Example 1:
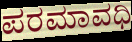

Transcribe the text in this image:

ಪರಮಾವಧಿ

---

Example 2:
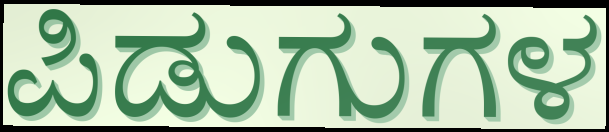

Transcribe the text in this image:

ಪಿಡುಗುಗಳ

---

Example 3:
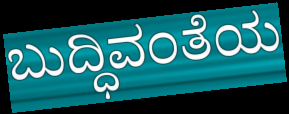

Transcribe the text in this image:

ಬುದ್ಧಿವಂತೆಯ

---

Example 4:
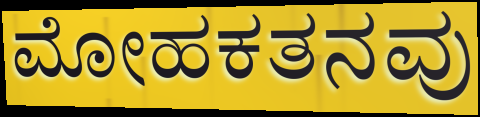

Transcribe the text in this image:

ಮೋಹಕತನವು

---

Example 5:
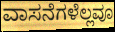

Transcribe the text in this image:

ವಾಸನೆಗಳೆಲ್ಲವೂ